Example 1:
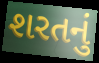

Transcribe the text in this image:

શરતનું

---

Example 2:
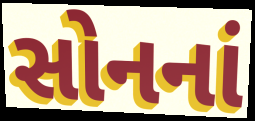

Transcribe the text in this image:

સોનનાં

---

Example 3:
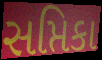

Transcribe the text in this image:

સપ્તિકા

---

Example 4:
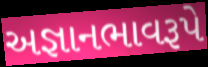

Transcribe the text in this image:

અજ્ઞાનભાવરૂપે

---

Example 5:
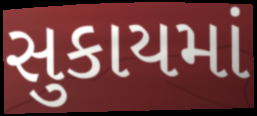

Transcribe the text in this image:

સુકાયમાં